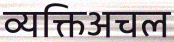
व्यक्तिअचल